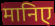
मानिए